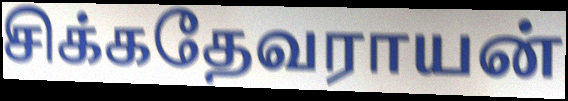
சிக்கதேவராயன்